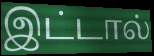
இட்டால்